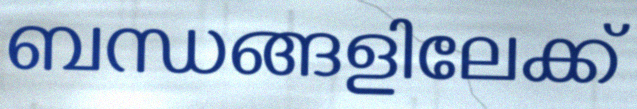
ബന്ധങ്ങളിലേക്ക്